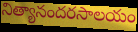
నిత్యానందరసాలయం